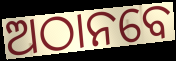
ଅଠାନବେ